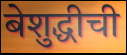
बेशुद्धीची